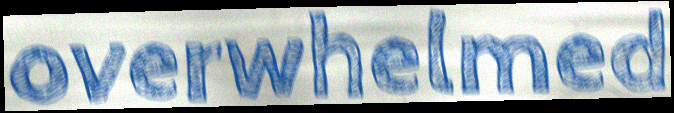
overwhelmed